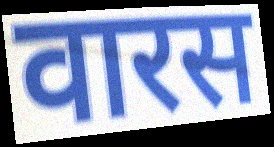
वारस